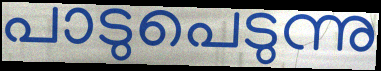
പാടുപെടുന്നു